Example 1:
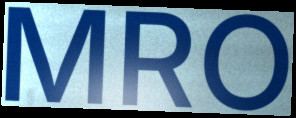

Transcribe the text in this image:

MRO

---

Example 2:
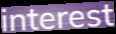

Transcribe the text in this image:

interest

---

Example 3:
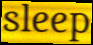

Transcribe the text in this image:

sleep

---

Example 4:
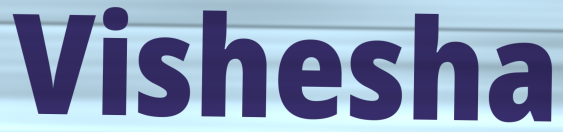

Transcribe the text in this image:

Vishesha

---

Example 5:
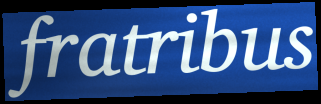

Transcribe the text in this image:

fratribus